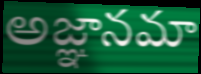
అజ్ఞానమా